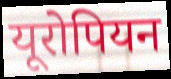
यूरोपियन